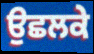
ਉਛਲਕੇ